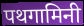
पथगामिनी